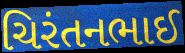
ચિરંતનભાઈ